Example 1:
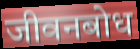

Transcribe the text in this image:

जीवनबोध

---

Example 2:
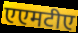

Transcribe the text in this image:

एएमटीए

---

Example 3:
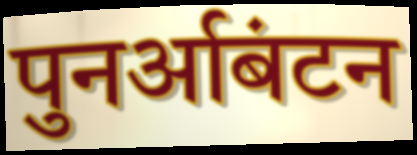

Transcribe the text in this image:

पुनर्आबंटन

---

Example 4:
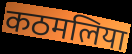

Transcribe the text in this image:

कठमलिया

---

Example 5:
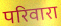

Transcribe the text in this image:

परिवारा